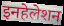
इनहेलेशन